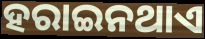
ହରାଇନଥାଏ